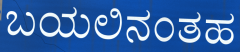
ಬಯಲಿನಂತಹ